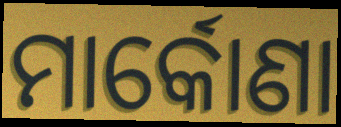
ମାର୍କୋଣା